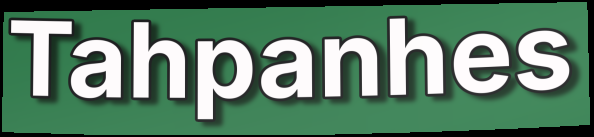
Tahpanhes